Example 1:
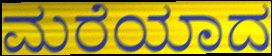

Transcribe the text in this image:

ಮರೆಯಾದ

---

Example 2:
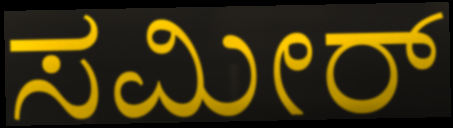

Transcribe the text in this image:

ಸಮೀರ್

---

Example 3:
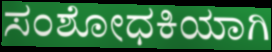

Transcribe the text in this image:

ಸಂಶೋಧಕಿಯಾಗಿ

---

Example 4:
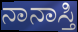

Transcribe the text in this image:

ನಾನಾಸ್ತಿ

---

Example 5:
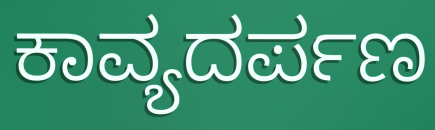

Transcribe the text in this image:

ಕಾವ್ಯದರ್ಪಣ